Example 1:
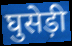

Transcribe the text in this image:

घुसेड़ी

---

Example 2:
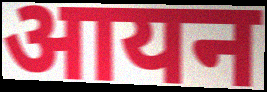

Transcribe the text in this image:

आयन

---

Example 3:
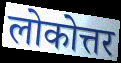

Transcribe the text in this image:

लोकोत्तर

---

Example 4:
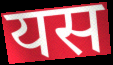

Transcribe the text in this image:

यस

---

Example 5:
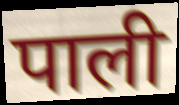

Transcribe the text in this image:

पाली